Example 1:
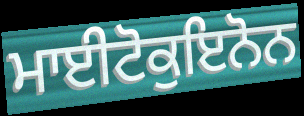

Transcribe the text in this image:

ਮਾਈਟੋਕੁਇਨੋਨ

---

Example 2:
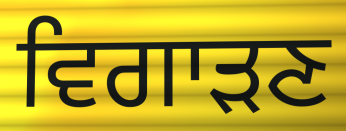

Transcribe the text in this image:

ਵਿਗਾੜਣ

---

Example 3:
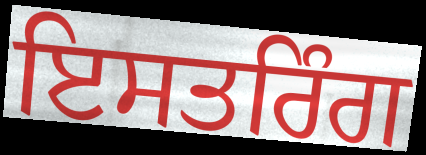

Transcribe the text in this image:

ਇਸਤਰਿੰਗ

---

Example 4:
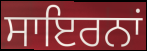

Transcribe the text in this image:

ਸਾਇਰਨਾਂ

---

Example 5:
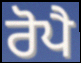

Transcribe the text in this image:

ਰੋਪੈ